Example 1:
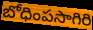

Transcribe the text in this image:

బోధింపసాగిరి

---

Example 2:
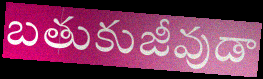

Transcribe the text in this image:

బతుకుజీవుడా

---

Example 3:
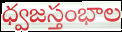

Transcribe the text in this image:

ధ్వజస్తంభాల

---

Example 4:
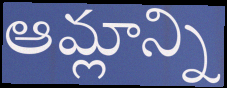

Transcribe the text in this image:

ఆమ్లాన్ని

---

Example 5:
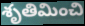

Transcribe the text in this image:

శృతిమించి